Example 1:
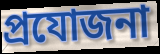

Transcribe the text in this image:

প্রযোজনা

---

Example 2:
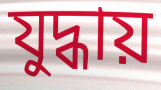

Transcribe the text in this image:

যুদ্ধায়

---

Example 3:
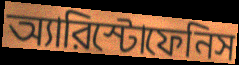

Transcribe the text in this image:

অ্যারিস্টোফেনিস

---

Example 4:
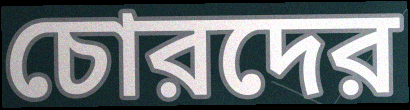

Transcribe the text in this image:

চোরদের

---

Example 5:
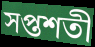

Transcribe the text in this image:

সপ্তশতী